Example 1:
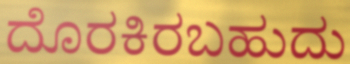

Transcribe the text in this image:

ದೊರಕಿರಬಹುದು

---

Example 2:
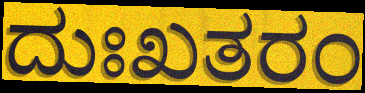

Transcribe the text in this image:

ದುಃಖತರಂ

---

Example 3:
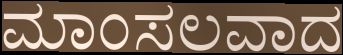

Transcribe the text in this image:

ಮಾಂಸಲವಾದ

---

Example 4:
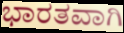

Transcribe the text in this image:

ಭಾರತವಾಗಿ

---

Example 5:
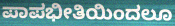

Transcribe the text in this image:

ಪಾಪಭೀತಿಯಿಂದಲೂ